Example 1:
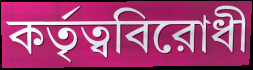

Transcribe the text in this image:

কর্তৃত্ববিরোধী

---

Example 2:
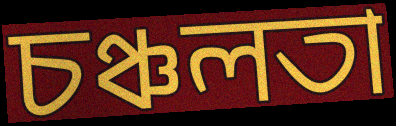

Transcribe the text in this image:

চঞ্চলতা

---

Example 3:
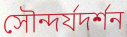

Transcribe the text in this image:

সৌন্দর্যদর্শন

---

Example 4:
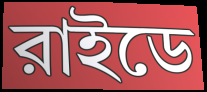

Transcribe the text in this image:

রাইডে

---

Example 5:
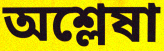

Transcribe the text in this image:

অশ্লেষা